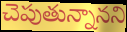
చెపుతున్నానని